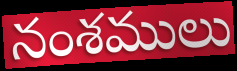
నంశములు